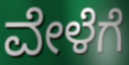
ವೇಳೆಗೆ